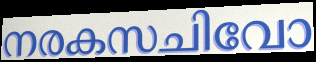
നരകസചിവോ